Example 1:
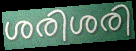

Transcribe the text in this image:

ശരിശരി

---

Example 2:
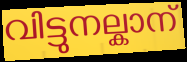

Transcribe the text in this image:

വിട്ടുനല്കാന്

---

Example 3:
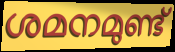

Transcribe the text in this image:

ശമനമുണ്ട്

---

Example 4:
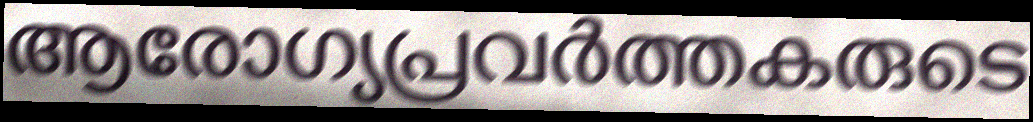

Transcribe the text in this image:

ആരോഗ്യപ്രവർത്തകരുടെ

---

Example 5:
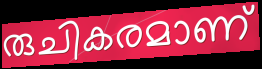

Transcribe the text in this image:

രുചികരമാണ്